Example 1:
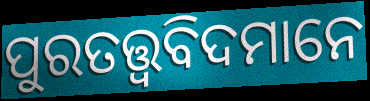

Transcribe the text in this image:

ପୁରତତ୍ତ୍ୱବିଦମାନେ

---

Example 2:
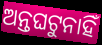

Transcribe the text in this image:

ଅନ୍ତଘଟୁନାହିଁ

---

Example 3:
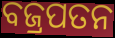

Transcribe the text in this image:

ବଜ୍ରପତନ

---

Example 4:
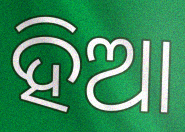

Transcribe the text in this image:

ହିଆ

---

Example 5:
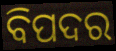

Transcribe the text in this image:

ବିପଦର